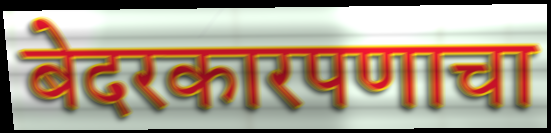
बेदरकारपणाचा